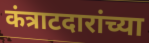
कंत्राटदारांच्या